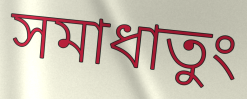
সমাধাতুং